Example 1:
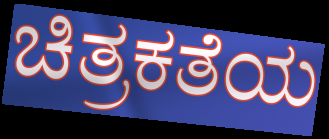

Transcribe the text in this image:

ಚಿತ್ರಕತೆಯ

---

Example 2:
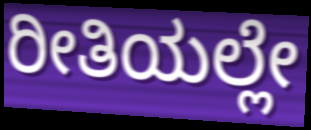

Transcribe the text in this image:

ರೀತಿಯಲ್ಲೇ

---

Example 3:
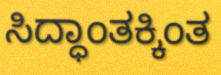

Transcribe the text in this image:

ಸಿದ್ಧಾಂತಕ್ಕಿಂತ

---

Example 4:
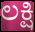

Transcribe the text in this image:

ಲಕ್ಷಿ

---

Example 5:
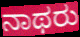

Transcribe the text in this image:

ನಾಥರು